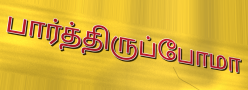
பார்த்திருப்போமா